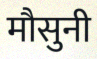
मौसुनी